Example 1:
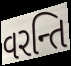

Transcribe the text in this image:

વરન્તિ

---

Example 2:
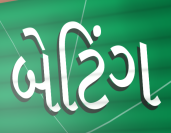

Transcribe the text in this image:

બેટિંગ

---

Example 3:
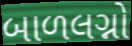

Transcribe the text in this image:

બાળલગ્નો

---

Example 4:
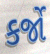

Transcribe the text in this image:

કર્જો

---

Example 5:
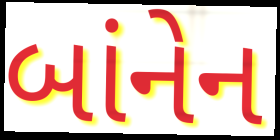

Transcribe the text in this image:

બાંનેન